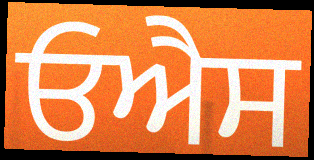
ਓਐਸ